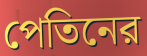
পেতিনের